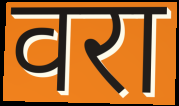
वरा